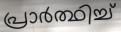
പ്രാർത്ഥിച്ച്